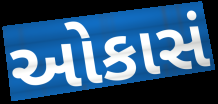
ઓકાસં